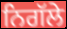
ਨਿਗੱਲੇ